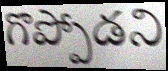
గొప్పోడని